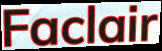
Faclair